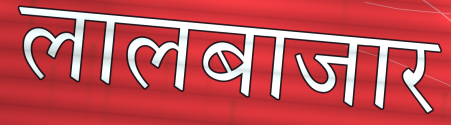
लालबाजार